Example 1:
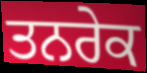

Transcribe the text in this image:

ਤਨਰੇਕ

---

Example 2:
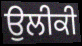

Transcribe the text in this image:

ਉਲੀਕੀ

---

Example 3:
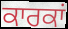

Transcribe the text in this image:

ਕਾਰਕਾਂ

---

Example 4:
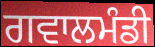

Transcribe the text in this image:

ਗਵਾਲਮੰਡੀ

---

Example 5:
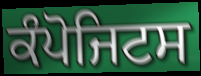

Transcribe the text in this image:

ਕੰਪੋਜਿਟਸ